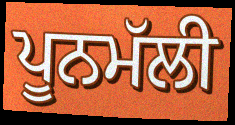
ਪੂਨਮੱਲੀ